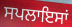
ਸਪਲਾਇਸਾਂ